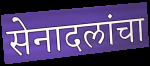
सेनादलांचा